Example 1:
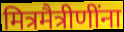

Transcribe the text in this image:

मित्रमैत्रीणींना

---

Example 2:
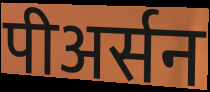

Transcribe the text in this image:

पीअर्सन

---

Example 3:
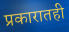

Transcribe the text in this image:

प्रकारातही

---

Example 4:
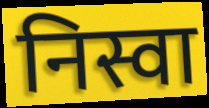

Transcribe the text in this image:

निस्वा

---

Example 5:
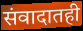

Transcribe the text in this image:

संवादातही